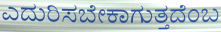
ಎದುರಿಸಬೇಕಾಗುತ್ತದೆಂಬ